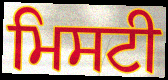
ਮਿਸਟੀ